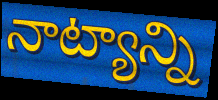
నాట్యాన్ని